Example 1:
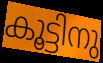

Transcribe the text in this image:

കൂട്ടിനു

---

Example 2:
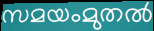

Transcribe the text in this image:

സമയംമുതൽ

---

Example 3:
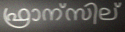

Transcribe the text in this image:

ഫ്രാന്സില്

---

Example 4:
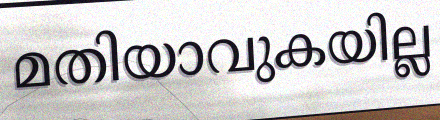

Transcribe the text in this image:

മതിയാവുകയില്ല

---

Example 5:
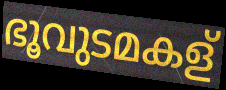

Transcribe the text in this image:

ഭൂവുടമകള്